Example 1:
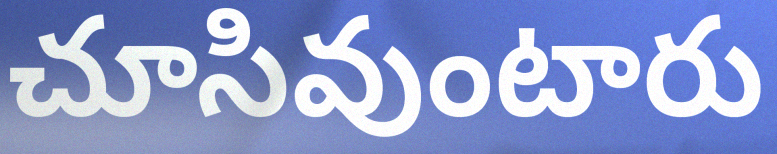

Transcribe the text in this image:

చూసివుంటారు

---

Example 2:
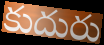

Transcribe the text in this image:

కుదురు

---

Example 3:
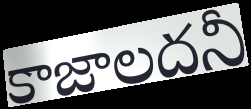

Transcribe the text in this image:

కాజాలదనీ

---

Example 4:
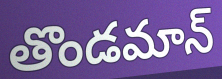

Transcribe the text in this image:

తొండమాన్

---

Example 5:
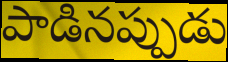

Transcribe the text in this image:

పాడినప్పుడు